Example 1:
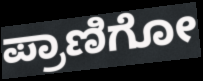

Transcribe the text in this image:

ಪ್ರಾಣಿಗೋ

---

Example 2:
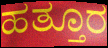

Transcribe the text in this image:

ಹತ್ತೂರ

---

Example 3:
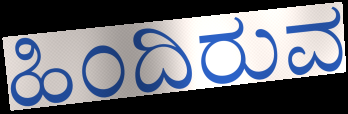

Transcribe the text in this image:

ಹಿಂದಿರುವ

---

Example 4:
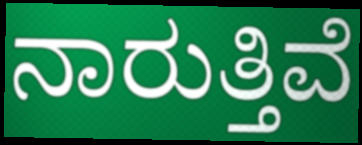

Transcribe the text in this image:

ನಾರುತ್ತಿವೆ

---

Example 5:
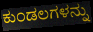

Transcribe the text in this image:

ಕುಂಡಲಗಳನ್ನು